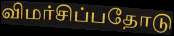
விமர்சிப்பதோடு